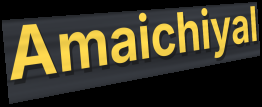
Amaichiyal